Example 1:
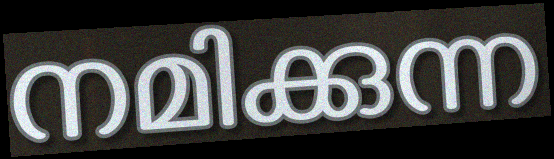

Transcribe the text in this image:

നമിക്കുന്ന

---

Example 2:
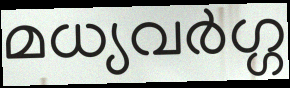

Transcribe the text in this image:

മധ്യവർഗ്ഗ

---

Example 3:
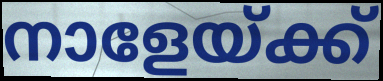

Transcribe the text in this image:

നാളേയ്ക്ക്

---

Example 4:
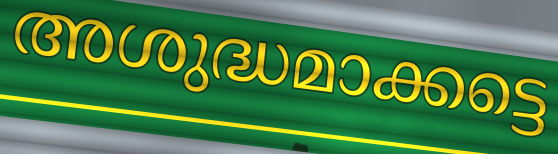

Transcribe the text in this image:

അശുദ്ധമാക്കട്ടെ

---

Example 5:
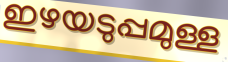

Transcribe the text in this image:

ഇഴയടുപ്പമുള്ള